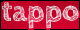
tappo